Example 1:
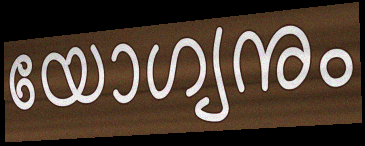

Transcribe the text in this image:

യോഗ്യനും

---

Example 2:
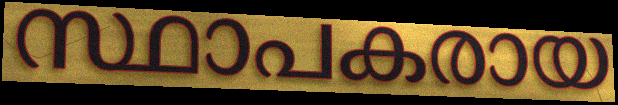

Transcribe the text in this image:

സ്ഥാപകരായ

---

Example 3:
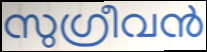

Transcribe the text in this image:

സുഗ്രീവൻ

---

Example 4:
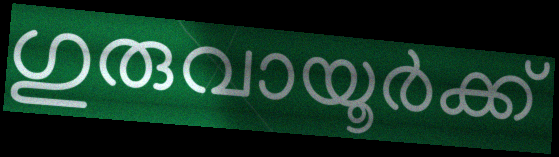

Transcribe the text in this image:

ഗുരുവായൂർക്ക്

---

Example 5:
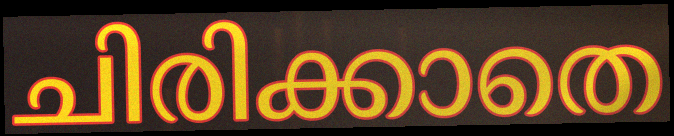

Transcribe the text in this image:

ചിരിക്കാതെ